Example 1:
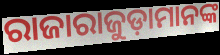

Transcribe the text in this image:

ରାଜାରାଜୁଡ଼ାମାନଙ୍କ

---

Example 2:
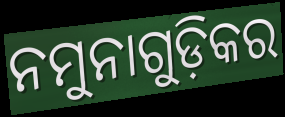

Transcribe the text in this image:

ନମୁନାଗୁଡ଼ିକର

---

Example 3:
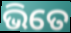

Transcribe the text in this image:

ଭିତେ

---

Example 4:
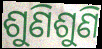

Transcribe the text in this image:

ଶୁଣିଶୁଣି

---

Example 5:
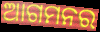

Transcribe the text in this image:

ଆଗମନର